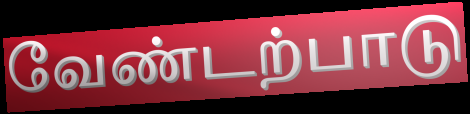
வேண்டற்பாடு